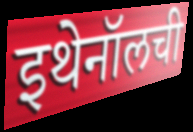
इथेनॉलची